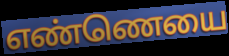
எண்ணெயை